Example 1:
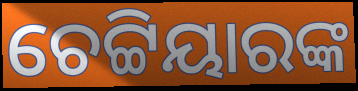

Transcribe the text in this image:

ଚେଟ୍ଟିୟାରଙ୍କ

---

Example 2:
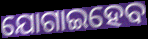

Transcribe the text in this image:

ଯୋଗାଇହେବ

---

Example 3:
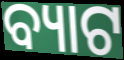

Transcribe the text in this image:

ବ୍ୟାଟ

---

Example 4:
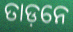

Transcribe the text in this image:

ତାଡ଼ନେ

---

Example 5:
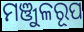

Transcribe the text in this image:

ମଞ୍ଜୁଳରୂପ